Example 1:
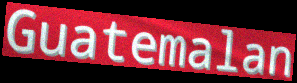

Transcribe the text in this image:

Guatemalan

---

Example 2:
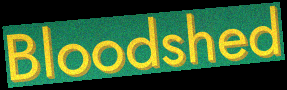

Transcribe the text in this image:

Bloodshed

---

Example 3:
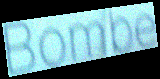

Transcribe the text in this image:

Bombe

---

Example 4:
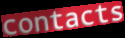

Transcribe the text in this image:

contacts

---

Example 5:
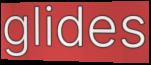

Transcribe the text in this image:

glides